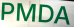
PMDA